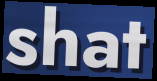
shat